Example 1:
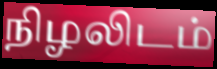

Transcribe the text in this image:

நிழலிடம்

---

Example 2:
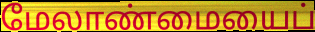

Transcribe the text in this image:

மேலாண்மையைப்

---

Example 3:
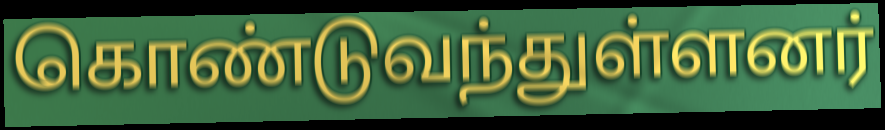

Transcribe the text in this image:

கொண்டுவந்துள்ளனர்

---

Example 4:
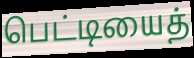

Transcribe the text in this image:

பெட்டியைத்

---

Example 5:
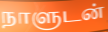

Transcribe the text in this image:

நாளுடன்